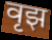
वृझ